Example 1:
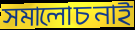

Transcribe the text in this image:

সমালোচনাই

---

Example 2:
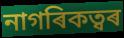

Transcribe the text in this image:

নাগৰিকত্বৰ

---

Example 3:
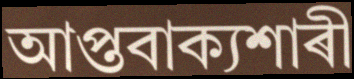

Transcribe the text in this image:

আপ্তবাক্যশাৰী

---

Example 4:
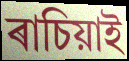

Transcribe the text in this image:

ৰাচিয়াই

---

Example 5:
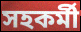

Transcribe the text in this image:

সহকৰ্মী